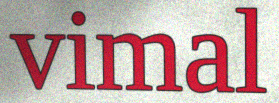
vimal